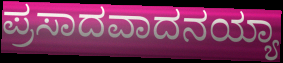
ಪ್ರಸಾದವಾದನಯ್ಯಾ